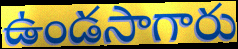
ఉండసాగారు